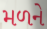
મળને